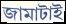
জামাটাই